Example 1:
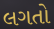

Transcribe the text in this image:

લગતો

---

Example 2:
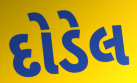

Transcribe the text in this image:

દોડેલ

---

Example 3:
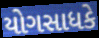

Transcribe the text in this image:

યોગસાધકે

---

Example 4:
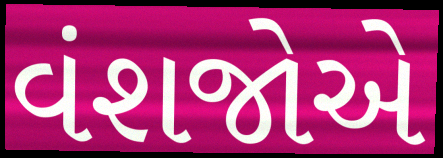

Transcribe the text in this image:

વંશજોએ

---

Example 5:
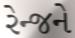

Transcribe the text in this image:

રેન્જને